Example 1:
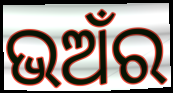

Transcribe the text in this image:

ଭଅଁର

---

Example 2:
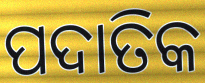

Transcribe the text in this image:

ପଦାତିକ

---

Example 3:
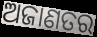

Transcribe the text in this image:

ଅଜାଣତର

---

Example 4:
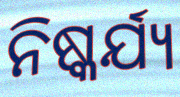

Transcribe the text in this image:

ନିଷ୍କର୍ଯ୍ୟ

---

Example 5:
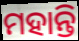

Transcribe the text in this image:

ମହାନ୍ତି